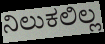
ನಿಲುಕಲಿಲ್ಲ